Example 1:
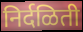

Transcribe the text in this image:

निर्दळिती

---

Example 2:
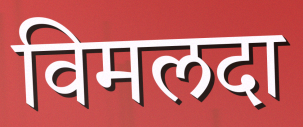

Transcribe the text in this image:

विमलदा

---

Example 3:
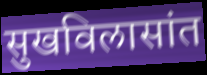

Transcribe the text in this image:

सुखविलासांत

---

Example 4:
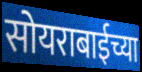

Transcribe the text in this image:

सोयराबाईच्या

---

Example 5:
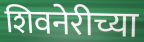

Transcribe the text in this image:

शिवनेरीच्या